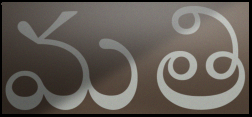
మతి